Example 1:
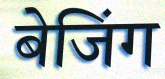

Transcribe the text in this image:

बेजिंग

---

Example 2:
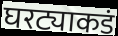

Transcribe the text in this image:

घरट्याकडं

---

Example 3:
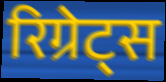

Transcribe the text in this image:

रिग्रेट्स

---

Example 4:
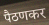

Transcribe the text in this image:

पैठणकर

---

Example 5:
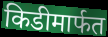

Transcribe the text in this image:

किडीमार्फत